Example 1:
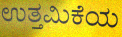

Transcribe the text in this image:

ಉತ್ತಮಿಕೆಯ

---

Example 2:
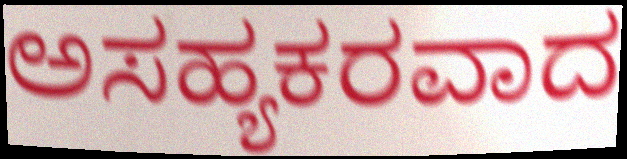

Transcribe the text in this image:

ಅಸಹ್ಯಕರವಾದ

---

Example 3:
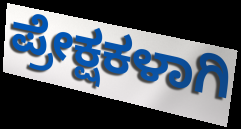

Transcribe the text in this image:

ಪ್ರೇಕ್ಷಕಳಾಗಿ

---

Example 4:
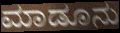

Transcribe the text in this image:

ಮಾಡೂನು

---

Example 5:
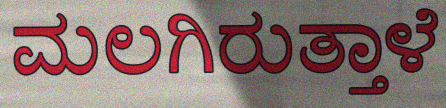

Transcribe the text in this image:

ಮಲಗಿರುತ್ತಾಳೆ